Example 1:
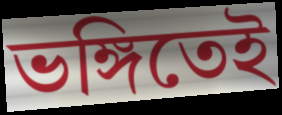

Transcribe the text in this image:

ভঙ্গিতেই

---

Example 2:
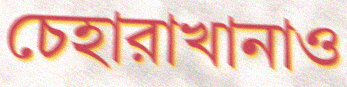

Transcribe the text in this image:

চেহারাখানাও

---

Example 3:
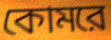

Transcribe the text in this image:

কোমরে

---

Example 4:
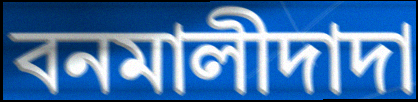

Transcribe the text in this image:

বনমালীদাদা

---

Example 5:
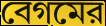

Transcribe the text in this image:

বেগমের